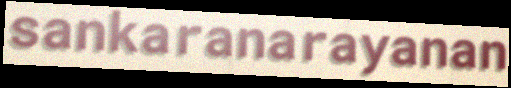
sankaranarayanan